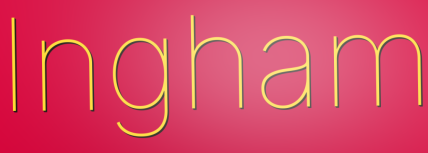
Ingham